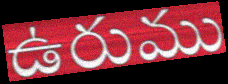
ఉరుము